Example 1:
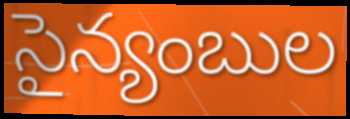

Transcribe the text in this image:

సైన్యంబుల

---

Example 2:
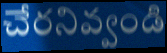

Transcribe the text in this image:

చేరనివ్వండి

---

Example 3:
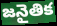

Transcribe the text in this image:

జనైతిక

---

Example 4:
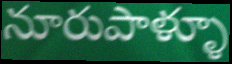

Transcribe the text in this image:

నూరుపాళ్ళూ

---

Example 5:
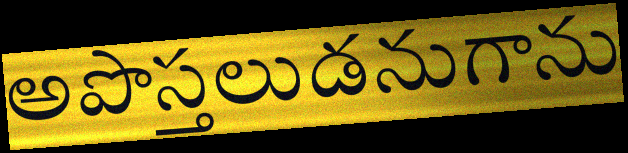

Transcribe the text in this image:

అపొస్తలుడనుగాను